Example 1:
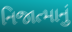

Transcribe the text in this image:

નિજાત્માનું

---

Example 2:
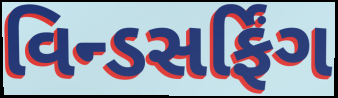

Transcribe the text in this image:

વિન્ડસર્ફિંગ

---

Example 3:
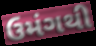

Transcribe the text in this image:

ઉમંગથી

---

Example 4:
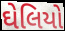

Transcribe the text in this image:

ઘેલિયો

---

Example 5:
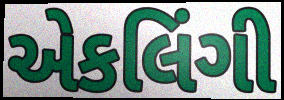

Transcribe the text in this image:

એકલિંગી